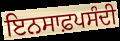
ਇਨਸਾਫ਼ਪਸੰਦੀ